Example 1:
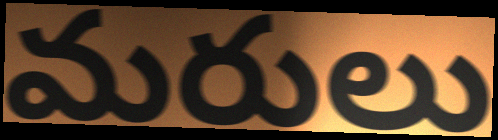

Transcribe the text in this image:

మరులు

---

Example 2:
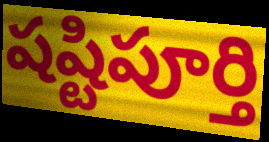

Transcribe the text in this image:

షష్టిపూర్తి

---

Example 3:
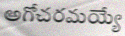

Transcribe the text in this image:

అగోచరమయ్యే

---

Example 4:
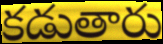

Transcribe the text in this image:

కడుతారు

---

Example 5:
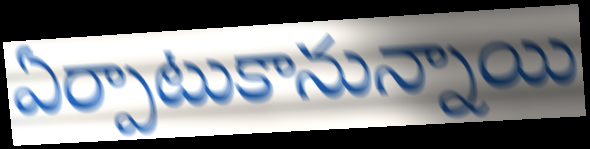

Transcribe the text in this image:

ఏర్పాటుకానున్నాయి